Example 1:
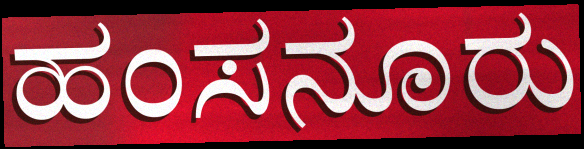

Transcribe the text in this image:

ಹಂಸನೂರು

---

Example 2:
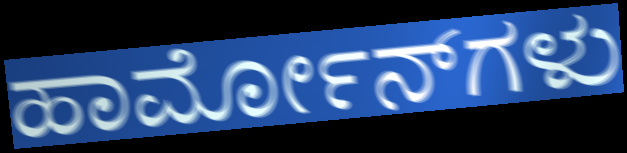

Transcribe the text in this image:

ಹಾರ್ಮೋನ್‌ಗಳು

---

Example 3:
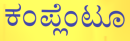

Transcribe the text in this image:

ಕಂಪ್ಲೆಂಟೂ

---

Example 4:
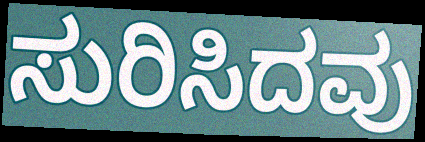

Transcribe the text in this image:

ಸುರಿಸಿದವು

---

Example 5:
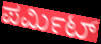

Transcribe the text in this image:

ಪರ್ಮಿಟ್